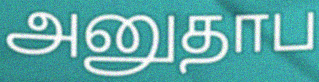
அனுதாப